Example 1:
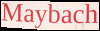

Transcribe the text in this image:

Maybach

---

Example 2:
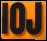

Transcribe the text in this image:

IOJ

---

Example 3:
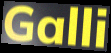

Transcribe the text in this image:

Galli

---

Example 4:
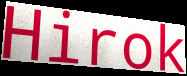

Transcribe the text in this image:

Hirok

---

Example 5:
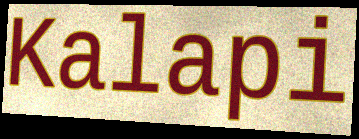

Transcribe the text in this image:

Kalapi